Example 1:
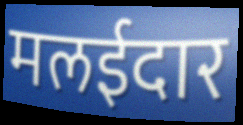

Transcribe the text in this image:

मलईदार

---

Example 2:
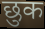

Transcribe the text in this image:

छुक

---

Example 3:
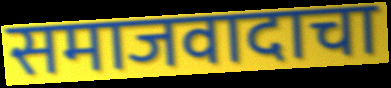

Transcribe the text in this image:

समाजवादाचा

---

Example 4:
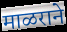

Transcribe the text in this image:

माळराने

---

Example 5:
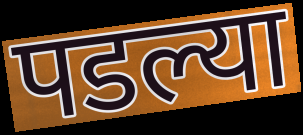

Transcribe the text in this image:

पडल्या